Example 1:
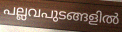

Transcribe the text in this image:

പല്ലവപുടങ്ങളിൽ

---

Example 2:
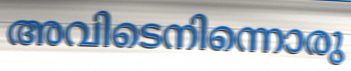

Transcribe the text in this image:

അവിടെനിന്നൊരു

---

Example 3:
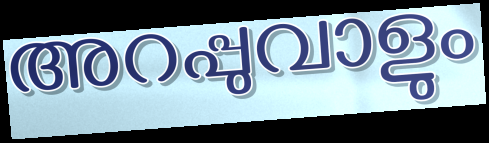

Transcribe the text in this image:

അറപ്പുവാളും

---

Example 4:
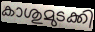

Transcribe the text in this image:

കാശുമുടക്കി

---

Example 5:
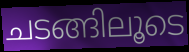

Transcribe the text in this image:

ചടങ്ങിലൂടെ